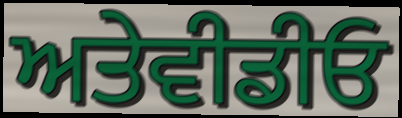
ਅਤੇਵੀਡੀਓ